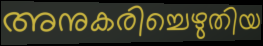
അനുകരിച്ചെഴുതിയ